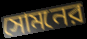
সোমনের